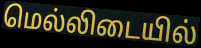
மெல்லிடையில்